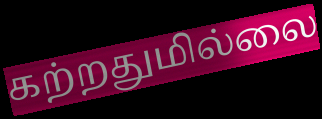
கற்றதுமில்லை